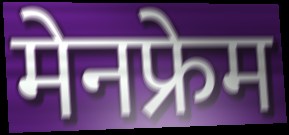
मेनफ्रेम